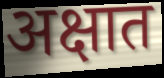
अक्षात